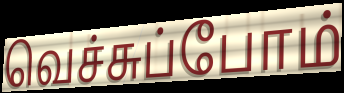
வெச்சுப்போம்